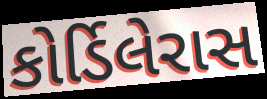
કોર્ડિલેરાસ